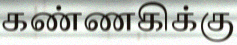
கண்ணகிக்கு